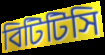
বিটিটিসি